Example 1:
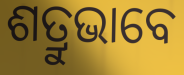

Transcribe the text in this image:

ଶତ୍ରୁଭାବେ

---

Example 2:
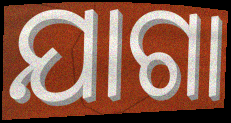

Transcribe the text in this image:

ଯାଗା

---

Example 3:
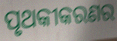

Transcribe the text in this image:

ପୃଥକୀକରଣର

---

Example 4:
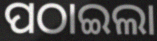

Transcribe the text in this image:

ପଠାଇଲା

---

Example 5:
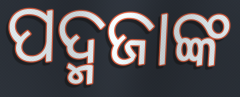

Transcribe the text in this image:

ପଦ୍ମଜାଙ୍କ